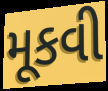
મૂકવી